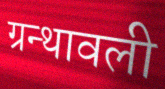
ग्रन्थावली